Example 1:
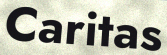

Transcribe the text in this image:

Caritas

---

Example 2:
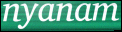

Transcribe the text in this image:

nyanam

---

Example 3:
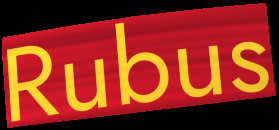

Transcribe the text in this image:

Rubus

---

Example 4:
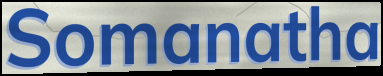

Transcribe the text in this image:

Somanatha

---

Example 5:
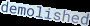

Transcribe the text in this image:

demolished